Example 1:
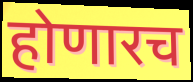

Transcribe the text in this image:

होणारच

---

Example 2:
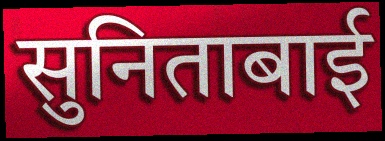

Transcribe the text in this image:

सुनिताबाई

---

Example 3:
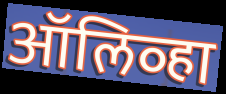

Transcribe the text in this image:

ऑलिव्हा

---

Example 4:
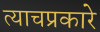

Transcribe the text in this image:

त्याचप्रकारे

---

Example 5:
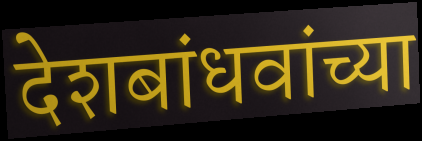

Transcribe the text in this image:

देशबांधवांच्या